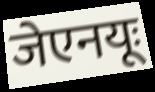
जेएनयूः